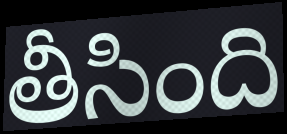
తీసింది